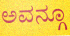
ಅವನ್ಗೂ